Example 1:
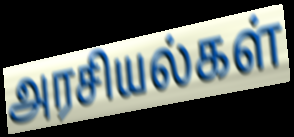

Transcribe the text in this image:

அரசியல்கள்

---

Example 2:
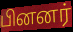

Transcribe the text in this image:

பினனர்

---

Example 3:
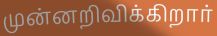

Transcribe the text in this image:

முன்னறிவிக்கிறார்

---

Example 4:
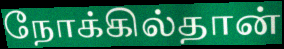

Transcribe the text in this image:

நோக்கில்தான்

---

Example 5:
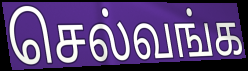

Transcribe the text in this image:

செல்வங்க